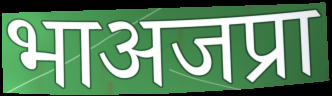
भाअजप्रा